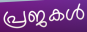
പ്രജകൾ